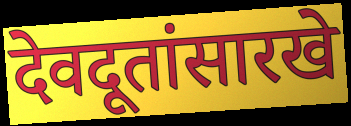
देवदूतांसारखे